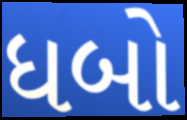
ધબો